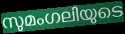
സുമംഗലിയുടെ